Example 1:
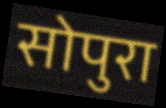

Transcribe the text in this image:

सोपुरा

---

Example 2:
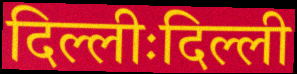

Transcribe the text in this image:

दिल्लीःदिल्ली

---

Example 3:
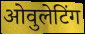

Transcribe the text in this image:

ओवुलेटिंग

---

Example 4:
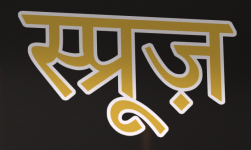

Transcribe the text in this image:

स्प्रूज़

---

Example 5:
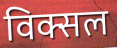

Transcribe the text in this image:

विक्सल